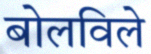
बोलविले